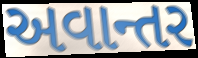
અવાન્તર